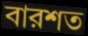
বারশত